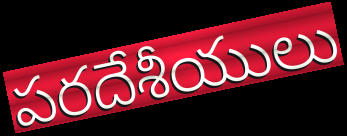
పరదేశీయులు